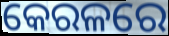
କେରଳରେ